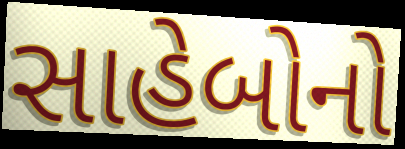
સાહેબોનો